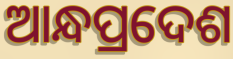
ଆନ୍ଧପ୍ରଦେଶ